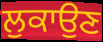
ਲੁਕਾਉਣ